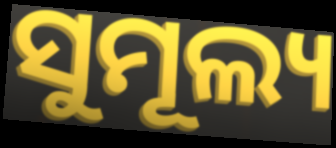
ସୁମୂଲ୍ୟ